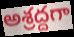
అశ్రద్దగా